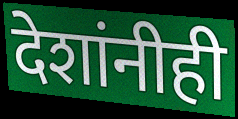
देशांनीही